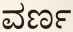
ವರ್ಣ